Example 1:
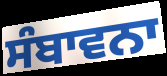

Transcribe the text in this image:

ਸੰਬਾਵਨਾ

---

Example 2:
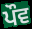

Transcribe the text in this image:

ਪੌਵ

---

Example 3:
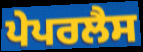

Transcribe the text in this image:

ਪੇਪਰਲੈਸ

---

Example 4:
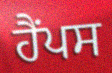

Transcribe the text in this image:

ਹੈਂਪਸ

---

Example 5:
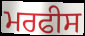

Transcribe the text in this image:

ਮਰਫੀਸ